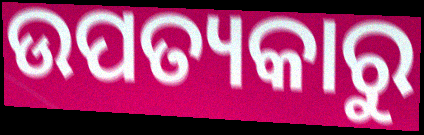
ଉପତ୍ୟକାରୁ